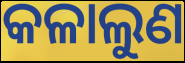
କଳାଲୁଣ